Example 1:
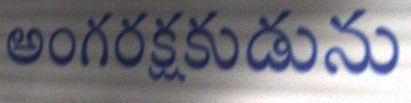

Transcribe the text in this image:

అంగరక్షకుడును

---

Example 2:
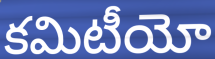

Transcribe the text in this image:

కమిటీయో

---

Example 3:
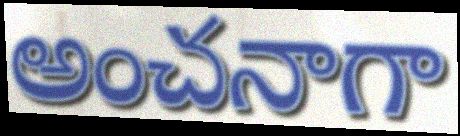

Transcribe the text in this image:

అంచనాగా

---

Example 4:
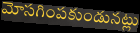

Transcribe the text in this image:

మోసగింపకుండునట్లు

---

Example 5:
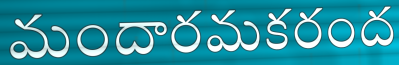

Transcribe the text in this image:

మందారమకరంద